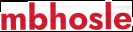
mbhosle